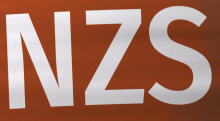
NZS